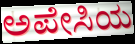
ಅಪೇಸಿಯ